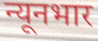
न्यूनभार